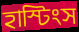
হাস্টিংস